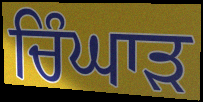
ਚਿੰਘਾੜ